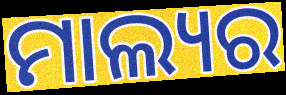
ମାଲ୍ୟର